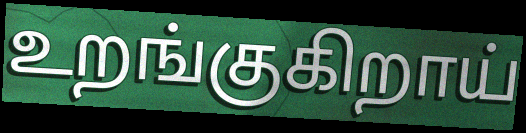
உறங்குகிறாய்